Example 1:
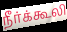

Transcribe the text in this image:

நீர்க்கூலி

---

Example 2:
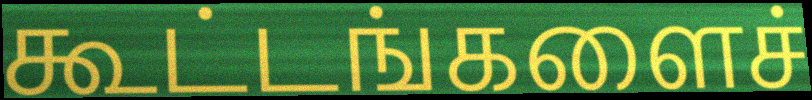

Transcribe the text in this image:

கூட்டங்களைச்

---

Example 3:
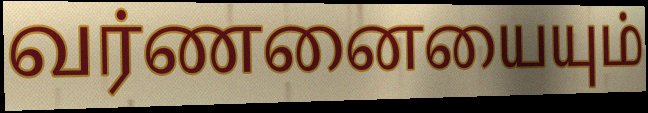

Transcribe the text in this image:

வர்ணனையையும்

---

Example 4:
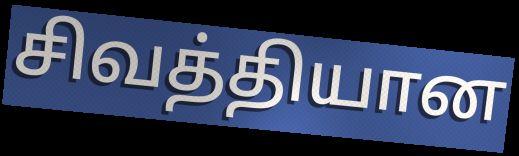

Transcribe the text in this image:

சிவத்தியான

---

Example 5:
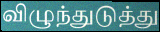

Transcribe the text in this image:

விழுந்துடுத்து